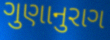
ગુણાનુરાગ